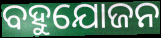
ବହୁଯୋଜନ